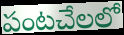
పంటచేలలో